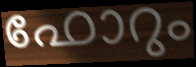
ഫോറും